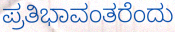
ಪ್ರತಿಭಾವಂತರೆಂದು